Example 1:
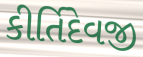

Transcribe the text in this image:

કીર્તિદેવજી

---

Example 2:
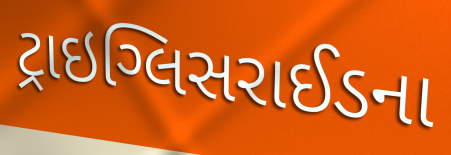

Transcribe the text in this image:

ટ્રાઇગ્લિસરાઈડના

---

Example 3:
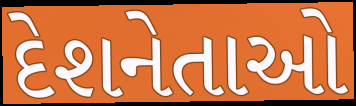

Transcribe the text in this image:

દેશનેતાઓ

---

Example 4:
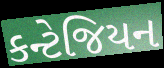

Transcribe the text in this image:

કન્ટેજિયન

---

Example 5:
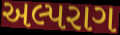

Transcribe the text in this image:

અલ્પરાગ